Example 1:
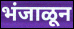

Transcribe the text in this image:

भंजाळून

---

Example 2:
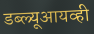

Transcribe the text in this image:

डब्ल्यूआयव्ही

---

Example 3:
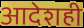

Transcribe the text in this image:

आदेशही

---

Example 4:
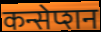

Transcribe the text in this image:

कन्सेप्शन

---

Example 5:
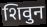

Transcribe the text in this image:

शिवुन